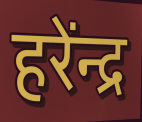
हरेंन्द्र